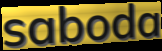
saboda